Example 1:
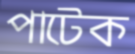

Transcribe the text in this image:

পাটেক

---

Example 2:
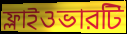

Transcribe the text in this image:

ফ্লাইওভারটি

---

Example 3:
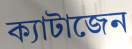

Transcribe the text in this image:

ক্যাটাজেন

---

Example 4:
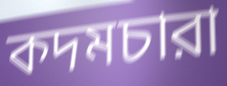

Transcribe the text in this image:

কদমচারা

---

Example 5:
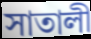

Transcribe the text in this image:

সাতালী